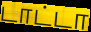
டாட்டா